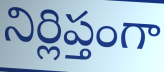
నిర్లిప్తంగా